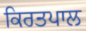
ਕਿਰਤਪਾਲ